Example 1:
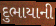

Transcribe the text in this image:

દુભાયાની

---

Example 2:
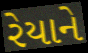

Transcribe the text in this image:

રેયાને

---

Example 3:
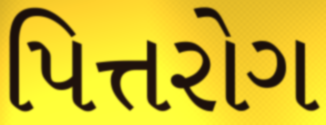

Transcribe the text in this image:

પિત્તરોગ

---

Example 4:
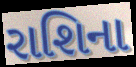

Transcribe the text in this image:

રાશિના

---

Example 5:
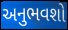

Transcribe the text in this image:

અનુભવશો